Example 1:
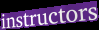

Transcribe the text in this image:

instructors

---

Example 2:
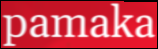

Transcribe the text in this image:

pamaka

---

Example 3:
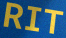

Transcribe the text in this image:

RIT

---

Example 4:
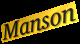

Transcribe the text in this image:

Manson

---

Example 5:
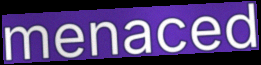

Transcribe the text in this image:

menaced